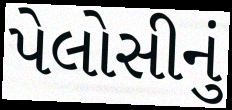
પેલોસીનું